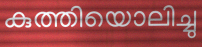
കുത്തിയൊലിച്ചു